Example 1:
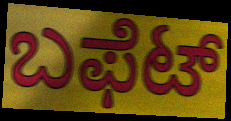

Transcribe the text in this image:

ಬಫೆಟ್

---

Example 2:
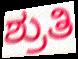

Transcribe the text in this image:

ಶ್ರುತಿ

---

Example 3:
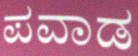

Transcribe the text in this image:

ಪವಾಡ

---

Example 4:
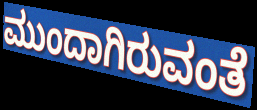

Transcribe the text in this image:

ಮುಂದಾಗಿರುವಂತೆ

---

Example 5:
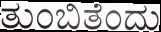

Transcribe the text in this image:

ತುಂಬಿತೆಂದು